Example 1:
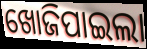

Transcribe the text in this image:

ଖୋଜିପାଇଲା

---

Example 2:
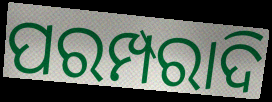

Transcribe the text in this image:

ପରମ୍ପରାଦି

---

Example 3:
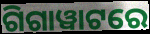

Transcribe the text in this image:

ଗିଗାୱାଟରେ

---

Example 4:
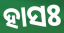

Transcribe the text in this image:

ହାସଃ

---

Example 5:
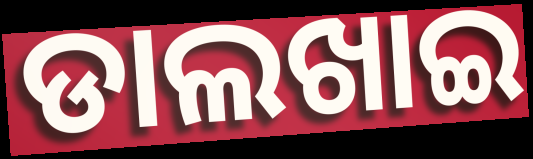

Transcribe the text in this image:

ଡାଲଖାଇ